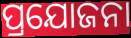
ପ୍ରଯୋଜନା